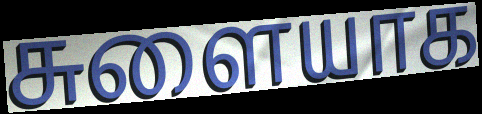
சுளையாக